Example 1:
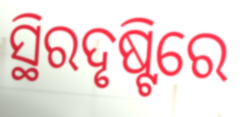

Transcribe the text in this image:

ସ୍ଥିରଦୃଷ୍ଟିରେ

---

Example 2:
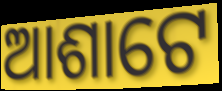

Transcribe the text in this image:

ଆଶାଟେ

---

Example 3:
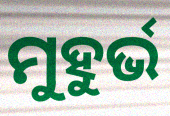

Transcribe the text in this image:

ମୁହୁର୍ଭ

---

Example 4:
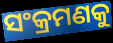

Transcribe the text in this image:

ସଂକ୍ରମଣକୁ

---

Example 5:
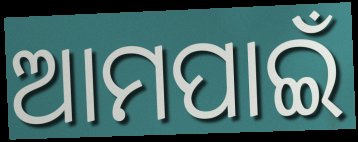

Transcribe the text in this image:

ଆମପାଇଁ